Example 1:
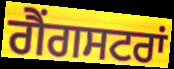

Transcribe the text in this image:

ਗੈਂਗਸਟਰਾਂ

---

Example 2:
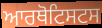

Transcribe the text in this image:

ਆਰਥੋਟਿਸਟਸ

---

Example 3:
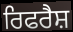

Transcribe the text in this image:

ਰਿਫਰੈਸ਼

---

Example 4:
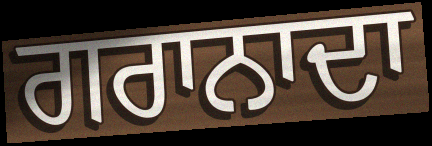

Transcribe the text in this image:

ਗਰਾਨਾਦਾ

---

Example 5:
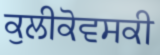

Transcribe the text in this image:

ਕੁਲੀਕੋਵਸਕੀ